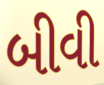
બીવી